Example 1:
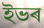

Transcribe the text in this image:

ইভৰ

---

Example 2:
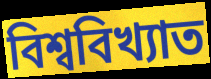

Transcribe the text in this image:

বিশ্ববিখ্যাত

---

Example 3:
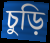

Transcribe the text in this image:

চুড়ি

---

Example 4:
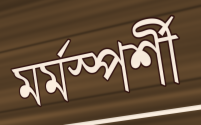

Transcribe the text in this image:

মৰ্মস্পৰ্শী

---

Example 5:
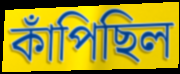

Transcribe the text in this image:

কাঁপিছিল